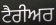
ਟੈਰੀਅਰ